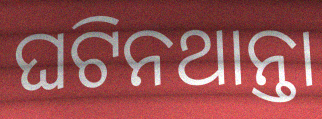
ଘଟିନଥାନ୍ତା